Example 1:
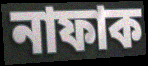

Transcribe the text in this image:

নাফাক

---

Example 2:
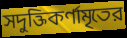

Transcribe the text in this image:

সদুক্তিকর্ণামৃতের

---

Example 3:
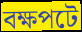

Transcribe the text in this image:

বক্ষপটে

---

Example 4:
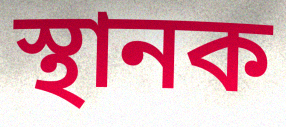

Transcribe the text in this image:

স্থানক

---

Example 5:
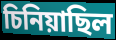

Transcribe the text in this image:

চিনিয়াছিল